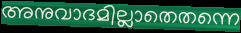
അനുവാദമില്ലാതെതന്നെ